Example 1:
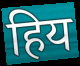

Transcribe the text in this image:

हिय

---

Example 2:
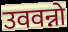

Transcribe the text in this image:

उववन्नो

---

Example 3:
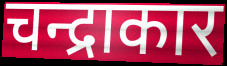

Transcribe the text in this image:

चन्द्राकार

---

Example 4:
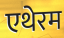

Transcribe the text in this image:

एथेरम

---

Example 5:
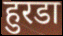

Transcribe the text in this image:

हुरडा